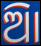
ଆି